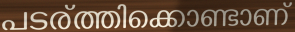
പടര്ത്തിക്കൊണ്ടാണ്